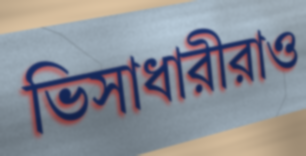
ভিসাধারীরাও